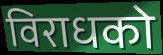
विराधको